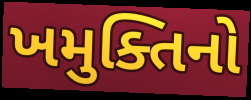
ખમુક્તિનો